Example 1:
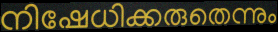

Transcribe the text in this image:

നിഷേധിക്കരുതെന്നും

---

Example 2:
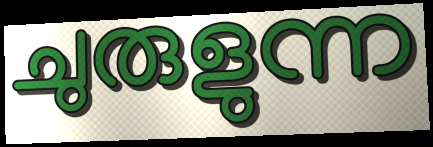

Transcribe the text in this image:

ചുരുളുന്ന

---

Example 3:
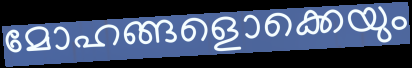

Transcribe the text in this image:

മോഹങ്ങളൊക്കെയും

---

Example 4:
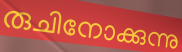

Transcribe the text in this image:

രുചിനോക്കുന്നു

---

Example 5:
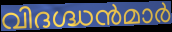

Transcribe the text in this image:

വിദഗ്ദ്ധൻമാർ